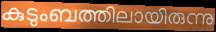
കുടുംബത്തിലായിരുന്നു